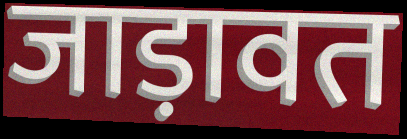
जाड़ावत